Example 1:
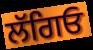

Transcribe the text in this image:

ਲੱਗਿਓ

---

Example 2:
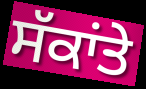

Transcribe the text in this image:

ਸੱਕਾਂਤੇ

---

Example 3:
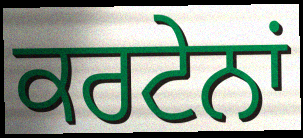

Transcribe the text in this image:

ਕਰਟੇਨਾਂ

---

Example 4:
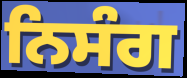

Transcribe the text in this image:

ਨਿਸੰਗ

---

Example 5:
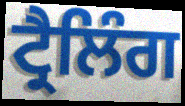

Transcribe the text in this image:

ਟ੍ਰੈਲਿੰਗ